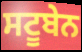
ਸਟੂਬੇਨ